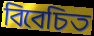
বিবেচিত